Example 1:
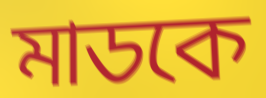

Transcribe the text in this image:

মাডকে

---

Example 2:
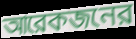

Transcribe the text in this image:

আরেকজনের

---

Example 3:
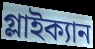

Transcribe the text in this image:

গ্লাইক্যান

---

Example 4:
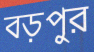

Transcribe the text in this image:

বড়পুর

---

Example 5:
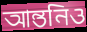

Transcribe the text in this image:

আন্তনিও